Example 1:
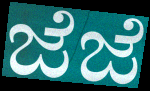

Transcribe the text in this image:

ಜೆಜೆ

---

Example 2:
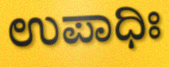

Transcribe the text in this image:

ಉಪಾಧಿಃ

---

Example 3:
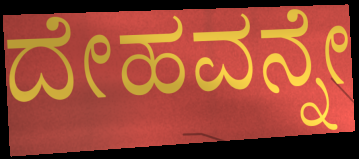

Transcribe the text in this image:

ದೇಹವನ್ನೇ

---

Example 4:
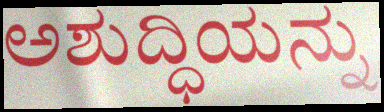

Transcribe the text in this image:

ಅಶುದ್ಧಿಯನ್ನು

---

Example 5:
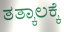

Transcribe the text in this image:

ತತ್ಕಾಲಕ್ಕೆ